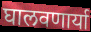
घालवणार्या